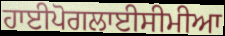
ਹਾਈਪੋਗਲਾਈਸੀਮੀਆ